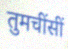
तुमचींसीं